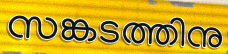
സങ്കടത്തിനു